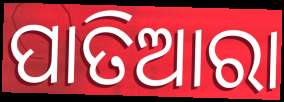
ପାତିଆରା